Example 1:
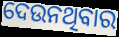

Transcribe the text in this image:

ଦେଉନଥିବାର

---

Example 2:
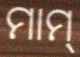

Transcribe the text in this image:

ମାମ୍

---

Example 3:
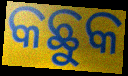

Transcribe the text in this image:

କଛୁକ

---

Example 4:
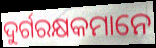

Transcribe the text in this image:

ଦୁର୍ଗରକ୍ଷକମାନେ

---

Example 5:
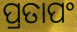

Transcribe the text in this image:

ପ୍ରତାପଂ